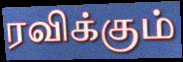
ரவிக்கும்